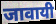
जावायी